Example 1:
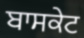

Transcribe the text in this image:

ਬਾਸਕੇਟ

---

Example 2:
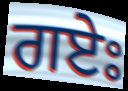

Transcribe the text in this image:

ਗਏਃ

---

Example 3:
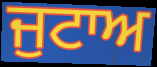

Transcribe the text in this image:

ਜੁਟਾਅ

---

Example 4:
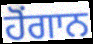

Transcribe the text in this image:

ਹੋਂਗਾਨ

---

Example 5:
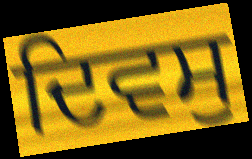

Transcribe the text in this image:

ਦਿਵਸੁ